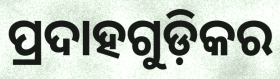
ପ୍ରଦାହଗୁଡ଼ିକର